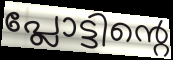
പ്ലോട്ടിന്റെ